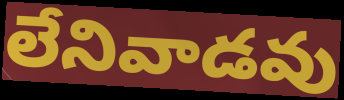
లేనివాడవు